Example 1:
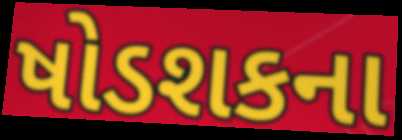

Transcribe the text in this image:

ષોડશકના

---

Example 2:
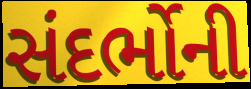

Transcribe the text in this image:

સંદર્ભોની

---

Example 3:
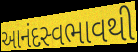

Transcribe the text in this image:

આનંદસ્વભાવથી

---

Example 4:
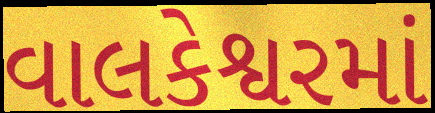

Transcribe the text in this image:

વાલકેશ્વરમાં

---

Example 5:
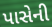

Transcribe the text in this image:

પાસેની